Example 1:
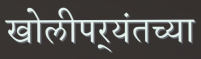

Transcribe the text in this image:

खोलीपर्यंतच्या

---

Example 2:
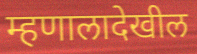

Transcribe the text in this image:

म्हणालादेखील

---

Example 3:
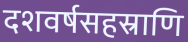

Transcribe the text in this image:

दशवर्षसहस्राणि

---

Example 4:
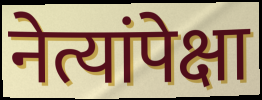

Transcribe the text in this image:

नेत्यांपेक्षा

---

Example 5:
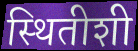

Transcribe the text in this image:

स्थितीशी